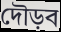
দৌড়ব